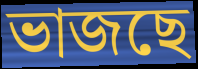
ভাজছে